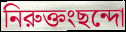
নিরুক্তংছন্দো